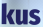
kus